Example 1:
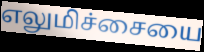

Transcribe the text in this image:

எலுமிச்சையை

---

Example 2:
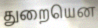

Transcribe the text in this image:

துறையென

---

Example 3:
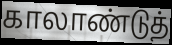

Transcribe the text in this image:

காலாண்டுத்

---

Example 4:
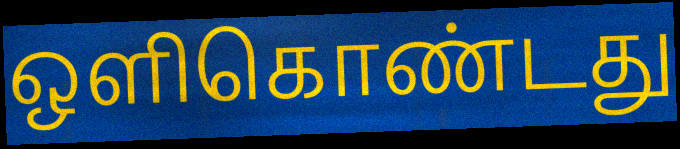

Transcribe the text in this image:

ஒளிகொண்டது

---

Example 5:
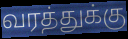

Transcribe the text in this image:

வரத்துக்கு